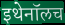
इथेनॉलच